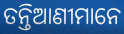
ତନ୍ତିଆଣୀମାନେ